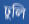
ঢুলি